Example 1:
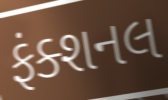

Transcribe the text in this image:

ફંક્શનલ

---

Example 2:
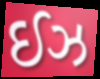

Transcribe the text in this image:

ઈઝ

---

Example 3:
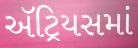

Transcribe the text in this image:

ઍટ્રિયસમાં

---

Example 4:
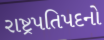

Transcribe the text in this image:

રાષ્ટ્રપતિપદનો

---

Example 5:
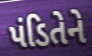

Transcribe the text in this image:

પંડિતેને